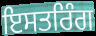
ਇਸਤਰਿੰਗ